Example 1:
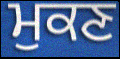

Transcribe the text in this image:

ਮੁਕਣ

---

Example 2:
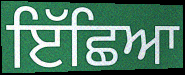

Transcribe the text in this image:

ਇੱਛਿਆ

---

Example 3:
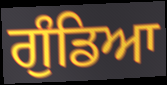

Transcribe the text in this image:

ਗੁੰਡਿਆ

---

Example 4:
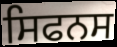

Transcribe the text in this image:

ਸਿਫਨਸ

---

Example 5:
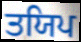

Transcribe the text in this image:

ਤਯਿਪ